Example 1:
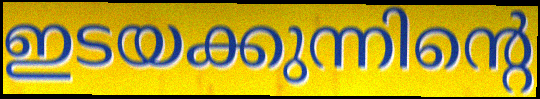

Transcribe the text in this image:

ഇടയക്കുന്നിന്റെ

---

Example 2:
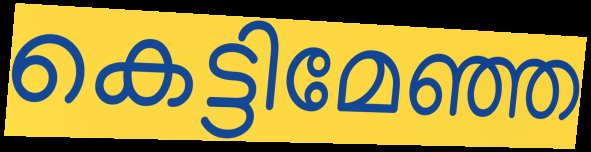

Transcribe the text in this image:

കെട്ടിമേഞ്ഞ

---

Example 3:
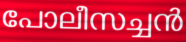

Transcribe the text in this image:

പോലീസച്ചൻ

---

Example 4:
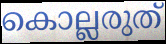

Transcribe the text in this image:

കൊല്ലരുത്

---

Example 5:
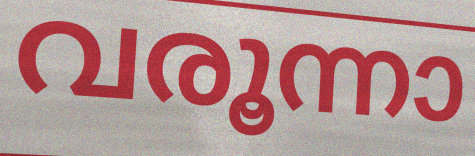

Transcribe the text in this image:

വരൂന്നാ